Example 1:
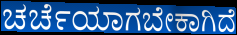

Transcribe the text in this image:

ಚರ್ಚೆಯಾಗಬೇಕಾಗಿದೆ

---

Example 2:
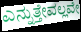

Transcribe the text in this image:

ಎನ್ನುತ್ತೇವಲ್ಲವೇ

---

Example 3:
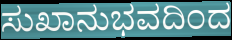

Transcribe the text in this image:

ಸುಖಾನುಭವದಿಂದ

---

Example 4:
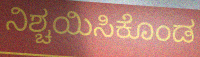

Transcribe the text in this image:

ನಿಶ್ಚಯಿಸಿಕೊಂಡ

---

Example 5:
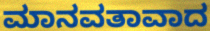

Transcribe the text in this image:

ಮಾನವತಾವಾದ